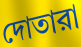
দোতারা